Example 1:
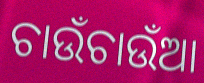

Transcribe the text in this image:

ଚାଉଁଚାଉଁଆ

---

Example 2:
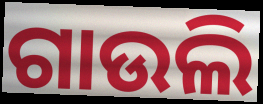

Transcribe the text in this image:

ଗାଉଲି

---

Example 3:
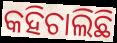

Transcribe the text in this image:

କହିଚାଲିଛି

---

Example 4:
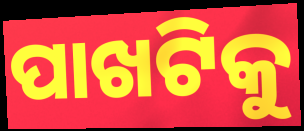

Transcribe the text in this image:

ପାଖଟିକୁ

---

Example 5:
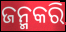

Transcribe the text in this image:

ଜନ୍ମକରି